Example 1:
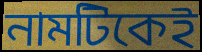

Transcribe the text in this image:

নামটিকেই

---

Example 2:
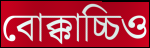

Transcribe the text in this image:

বোক্কাচ্চিও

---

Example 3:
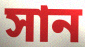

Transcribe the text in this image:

সান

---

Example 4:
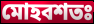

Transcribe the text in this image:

মোহবশতঃ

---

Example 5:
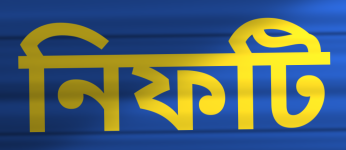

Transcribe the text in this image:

নিফটি